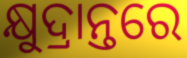
କ୍ଷୁଦ୍ରାନ୍ତରେ